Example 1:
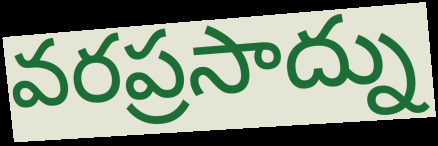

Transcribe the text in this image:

వరప్రసాద్ను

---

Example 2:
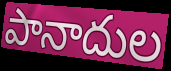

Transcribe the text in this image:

పానాదుల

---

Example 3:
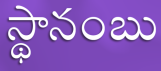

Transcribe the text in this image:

స్థానంబు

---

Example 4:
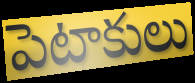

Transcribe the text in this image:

పెటాకులు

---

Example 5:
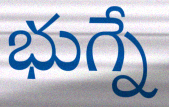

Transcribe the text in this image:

భుగ్నే